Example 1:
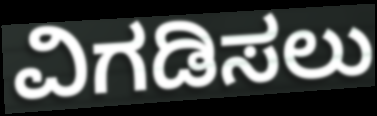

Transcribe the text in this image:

ವಿಗಡಿಸಲು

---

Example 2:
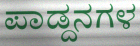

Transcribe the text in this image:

ಪಾಡ್ದನಗಳ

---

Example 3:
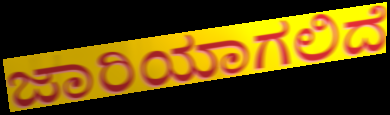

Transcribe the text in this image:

ಜಾರಿಯಾಗಲಿದೆ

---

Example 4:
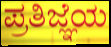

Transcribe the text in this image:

ಪ್ರತಿಜ್ಞೆಯ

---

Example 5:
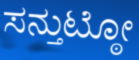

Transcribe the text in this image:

ಸನ್ತುಟ್ಠೋ